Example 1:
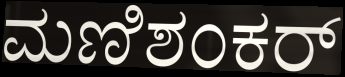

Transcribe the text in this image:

ಮಣಿಶಂಕರ್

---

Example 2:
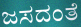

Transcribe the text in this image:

ಜಸದಂತೆ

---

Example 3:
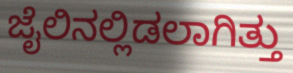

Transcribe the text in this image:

ಜೈಲಿನಲ್ಲಿಡಲಾಗಿತ್ತು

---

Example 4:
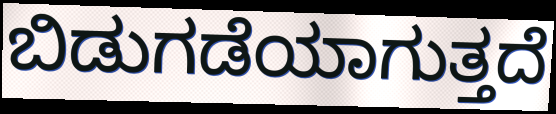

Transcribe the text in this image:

ಬಿಡುಗಡೆಯಾಗುತ್ತದೆ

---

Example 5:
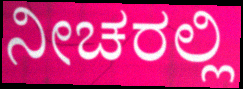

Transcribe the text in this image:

ನೀಚರಲ್ಲಿ